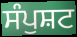
ਸੰਪੁਸ਼ਟ